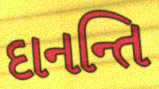
દાનન્તિ